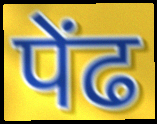
पेंढ